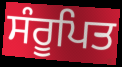
ਸੰਰੂਪਿਤ